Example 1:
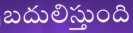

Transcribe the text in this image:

బదులిస్తుంది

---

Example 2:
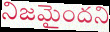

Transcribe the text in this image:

నిజమైందని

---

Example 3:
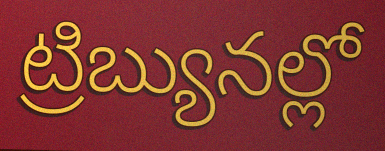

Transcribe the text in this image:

ట్రిబ్యునల్లో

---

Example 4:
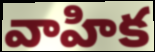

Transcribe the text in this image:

వాహిక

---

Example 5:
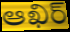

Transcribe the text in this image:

ఆఖిర్